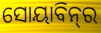
ସୋୟାବିନ୍‌ର